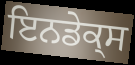
ਇਨਡੇਕ੍ਸ